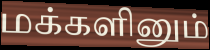
மக்களினும்